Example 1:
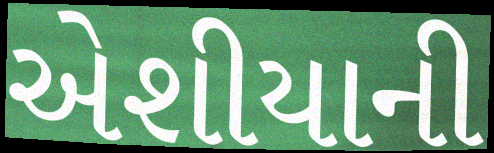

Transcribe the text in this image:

એશીયાની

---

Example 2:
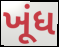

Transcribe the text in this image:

ખૂંધ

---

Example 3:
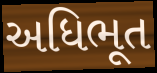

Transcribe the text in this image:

અધિભૂત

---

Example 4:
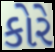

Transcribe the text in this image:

કોરે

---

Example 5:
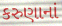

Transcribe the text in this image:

કરુણાનાં